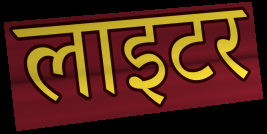
लाइटर